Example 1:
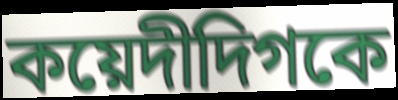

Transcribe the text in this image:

কয়েদীদিগকে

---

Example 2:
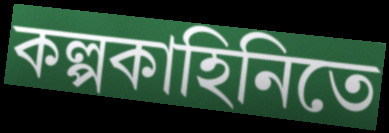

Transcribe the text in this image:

কল্পকাহিনিতে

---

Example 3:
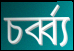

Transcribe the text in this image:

চর্ব্ব্য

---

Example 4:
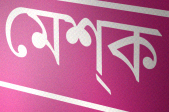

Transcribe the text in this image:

মেশ্ক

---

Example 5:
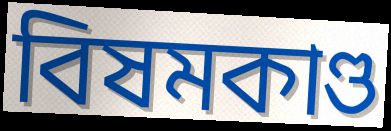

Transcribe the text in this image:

বিষমকাণ্ড